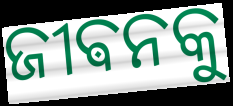
ଜୀଵନକୁ